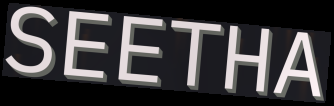
SEETHA